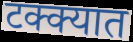
टक्क्यात